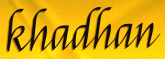
khadhan